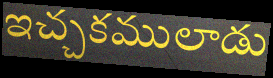
ఇచ్చకములాడు